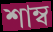
শাম্ব